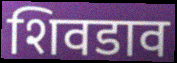
शिवडाव